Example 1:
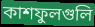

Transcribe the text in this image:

কাশফুলগুলি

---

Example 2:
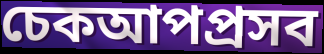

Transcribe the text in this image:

চেকআপপ্রসব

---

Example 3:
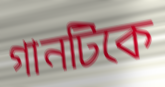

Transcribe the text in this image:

গানটিকে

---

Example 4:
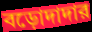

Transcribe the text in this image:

বড়োদাদার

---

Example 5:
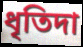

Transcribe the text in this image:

ধৃতিদা